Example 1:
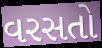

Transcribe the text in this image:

વરસતો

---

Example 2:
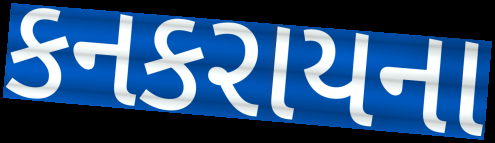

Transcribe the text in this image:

કનકરાયના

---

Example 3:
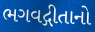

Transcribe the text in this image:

ભગવદ્ગીતાનો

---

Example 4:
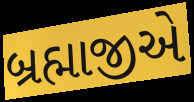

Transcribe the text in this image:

બ્રહ્માજીએ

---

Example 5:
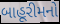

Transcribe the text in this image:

બાહૂરીમનો